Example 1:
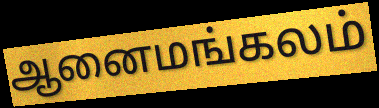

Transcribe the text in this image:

ஆனைமங்கலம்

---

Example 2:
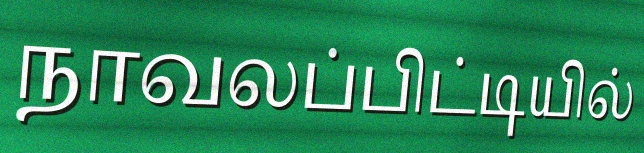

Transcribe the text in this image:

நாவலப்பிட்டியில்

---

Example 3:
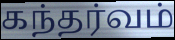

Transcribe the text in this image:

கந்தர்வம்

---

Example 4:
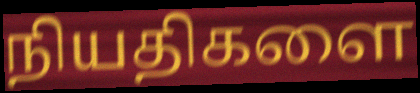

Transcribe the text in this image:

நியதிகளை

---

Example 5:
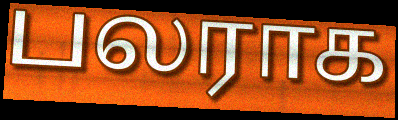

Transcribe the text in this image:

பலராக